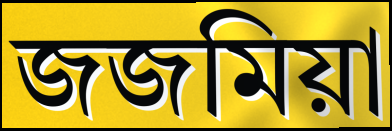
জজমিয়া